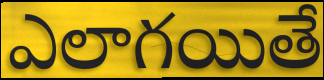
ఎలాగయితే